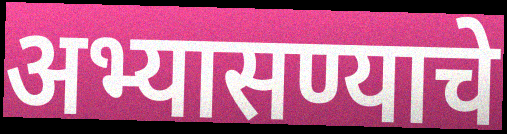
अभ्यासण्याचे